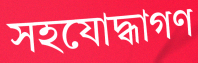
সহযোদ্ধাগণ